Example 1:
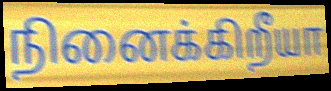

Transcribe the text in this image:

நினைக்கிறீயா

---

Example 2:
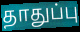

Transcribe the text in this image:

தாதுப்பு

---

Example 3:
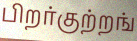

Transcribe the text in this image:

பிறர்குற்றங்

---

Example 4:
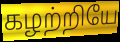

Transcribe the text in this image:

கழற்றியே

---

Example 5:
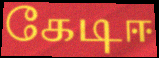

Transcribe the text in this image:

கேடிஈ